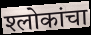
श्लोकांचा